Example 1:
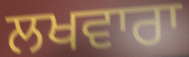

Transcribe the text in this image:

ਲਖਵਾਰਾ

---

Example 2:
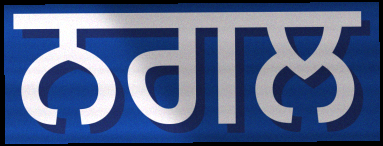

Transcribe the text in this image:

ਨਗਲ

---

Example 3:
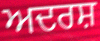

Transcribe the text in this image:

ਅਦਰਸ਼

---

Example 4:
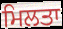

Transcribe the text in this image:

ਮਿਲਤਾ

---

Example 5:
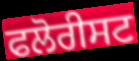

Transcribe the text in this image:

ਫਲੋਰੀਸਟ